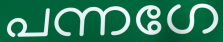
പന്നഗേ